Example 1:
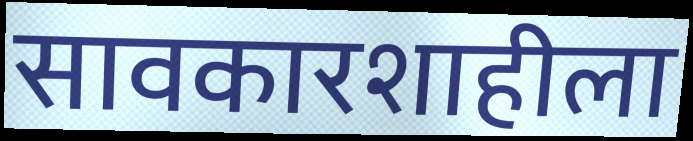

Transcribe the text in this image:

सावकारशाहीला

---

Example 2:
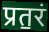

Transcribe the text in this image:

प्रत॒रं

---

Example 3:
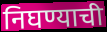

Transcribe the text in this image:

निघण्याची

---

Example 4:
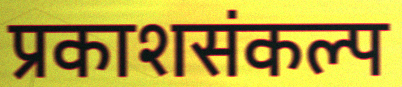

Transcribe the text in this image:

प्रकाशसंकल्प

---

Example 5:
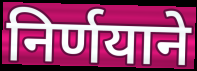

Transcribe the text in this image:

निर्णयाने